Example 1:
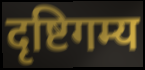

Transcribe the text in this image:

दृष्टिगम्य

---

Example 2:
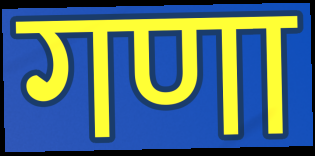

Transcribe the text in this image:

गणा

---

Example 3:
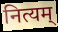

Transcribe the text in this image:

नित्यम्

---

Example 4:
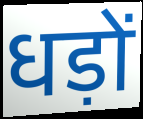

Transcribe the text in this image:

धड़ों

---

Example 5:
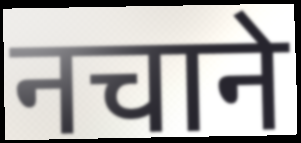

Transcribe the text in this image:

नचाने